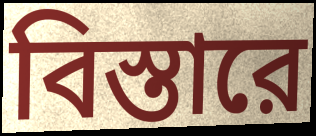
বিস্তারে